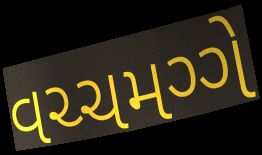
વચ્ચમગ્ગે